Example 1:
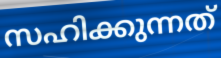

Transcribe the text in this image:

സഹിക്കുന്നത്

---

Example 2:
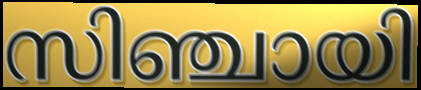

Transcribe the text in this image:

സിഞ്ചായി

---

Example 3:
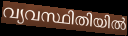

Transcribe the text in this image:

വ്യവസ്ഥിതിയിൽ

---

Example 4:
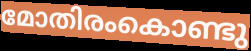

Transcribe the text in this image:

മോതിരംകൊണ്ടു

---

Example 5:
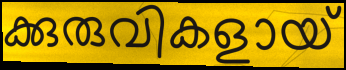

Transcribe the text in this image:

ക്കുരുവികളായ്